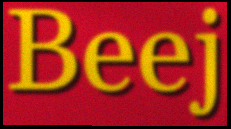
Beej